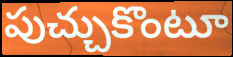
పుచ్చుకొంటూ